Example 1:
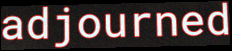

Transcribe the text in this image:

adjourned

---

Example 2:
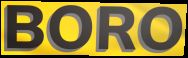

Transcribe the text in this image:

BORO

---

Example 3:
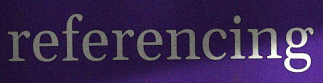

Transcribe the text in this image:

referencing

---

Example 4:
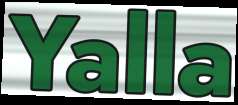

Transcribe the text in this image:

Yalla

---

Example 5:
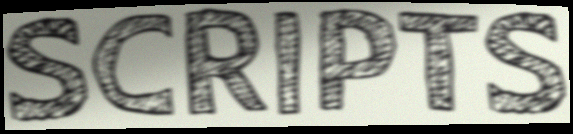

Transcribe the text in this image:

SCRIPTS